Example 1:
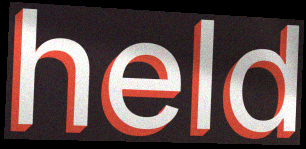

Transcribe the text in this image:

held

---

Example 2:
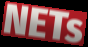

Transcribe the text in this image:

NETs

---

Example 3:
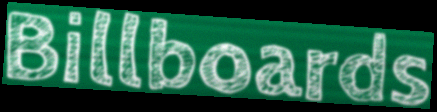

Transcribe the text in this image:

Billboards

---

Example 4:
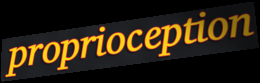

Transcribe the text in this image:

proprioception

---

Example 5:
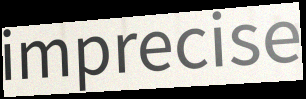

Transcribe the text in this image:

imprecise